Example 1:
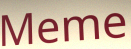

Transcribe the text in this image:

Meme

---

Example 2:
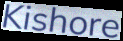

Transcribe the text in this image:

Kishore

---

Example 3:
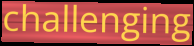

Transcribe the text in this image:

challenging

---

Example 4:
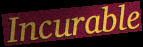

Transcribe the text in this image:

Incurable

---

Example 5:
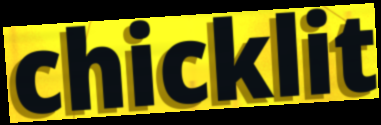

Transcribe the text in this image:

chicklit